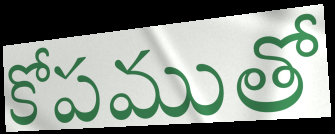
కోపముతో